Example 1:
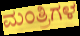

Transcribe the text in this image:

ಮಂತ್ರಿಗಳ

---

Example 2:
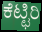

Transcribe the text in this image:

ಕೆಟ್ಟಿರಿ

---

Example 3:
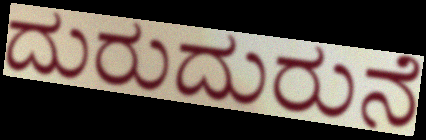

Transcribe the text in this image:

ದುರುದುರುನೆ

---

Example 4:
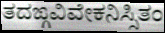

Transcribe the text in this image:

ತದಙ್ಗವಿವೇಕನಿಸ್ಸಿತಂ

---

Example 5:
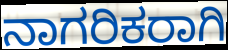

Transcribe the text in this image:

ನಾಗರಿಕರಾಗಿ